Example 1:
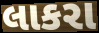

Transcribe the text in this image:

લાકરા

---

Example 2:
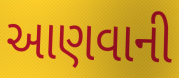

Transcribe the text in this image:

આણવાની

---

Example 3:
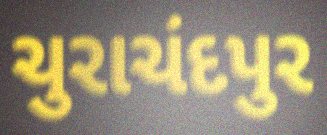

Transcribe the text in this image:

ચુરાચંદપુર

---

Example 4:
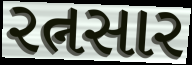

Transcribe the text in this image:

રત્નસાર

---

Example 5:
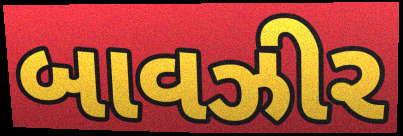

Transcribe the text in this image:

બાવઝીર